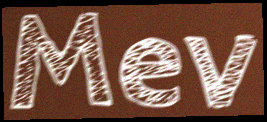
Mev